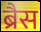
ब्रैस